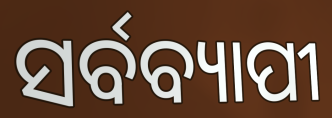
ସର୍ବବ୍ୟାପୀ